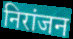
निरांजन